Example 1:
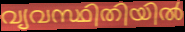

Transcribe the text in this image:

വ്യവസ്ഥിതിയിൽ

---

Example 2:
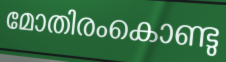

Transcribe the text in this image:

മോതിരംകൊണ്ടു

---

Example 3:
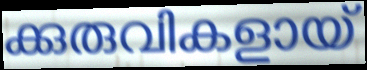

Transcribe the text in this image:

ക്കുരുവികളായ്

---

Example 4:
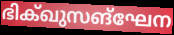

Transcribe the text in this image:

ഭിക്ഖുസങ്ഘേന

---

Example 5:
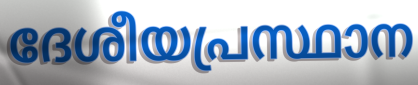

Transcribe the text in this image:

ദേശീയപ്രസ്ഥാന